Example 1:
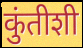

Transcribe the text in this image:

कुंतीशी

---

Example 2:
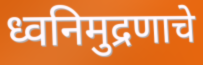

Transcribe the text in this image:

ध्वनिमुद्रणाचे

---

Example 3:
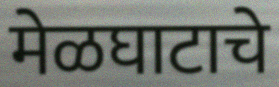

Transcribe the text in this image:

मेळघाटाचे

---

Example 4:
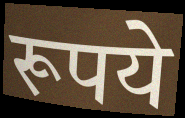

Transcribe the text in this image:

रूपये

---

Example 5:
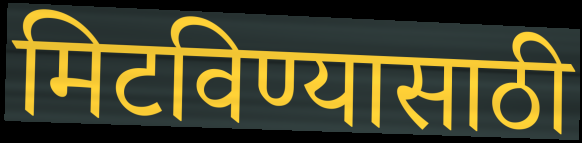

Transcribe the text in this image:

मिटविण्यासाठी